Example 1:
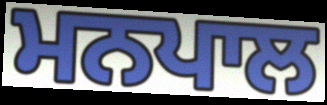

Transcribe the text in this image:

ਮਨਪਾਲ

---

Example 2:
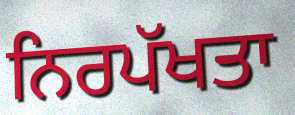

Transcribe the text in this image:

ਨਿਰਪੱਖਤਾ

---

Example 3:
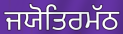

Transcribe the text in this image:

ਜਯੋਤਿਰਮੱਠ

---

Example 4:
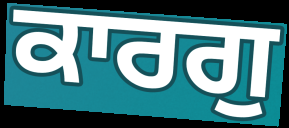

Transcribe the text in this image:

ਕਾਰਗੁ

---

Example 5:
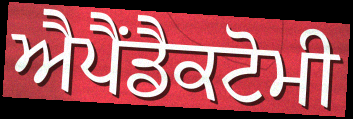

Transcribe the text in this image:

ਐਪੈਂਡੈਕਟੋਮੀ